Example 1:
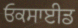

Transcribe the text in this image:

ਓਕਸਾਈਡ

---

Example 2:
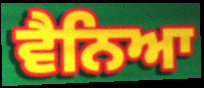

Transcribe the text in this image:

ਵੈਨਿਆ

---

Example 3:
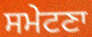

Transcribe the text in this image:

ਸਮੇਟਣਾ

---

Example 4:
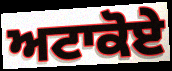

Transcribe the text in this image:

ਅਟਾਕੋਏ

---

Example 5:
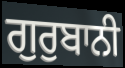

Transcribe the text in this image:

ਗੁਰੁਬਾਨੀ